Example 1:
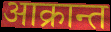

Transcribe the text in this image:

आक्रान्त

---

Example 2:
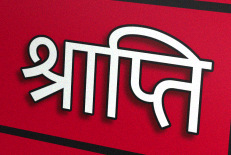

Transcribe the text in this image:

श्राप्ति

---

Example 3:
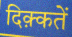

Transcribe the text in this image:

दिक़्कतें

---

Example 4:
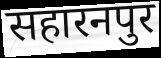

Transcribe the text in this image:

सहारनपुर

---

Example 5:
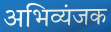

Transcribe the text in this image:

अभिव्यंजक